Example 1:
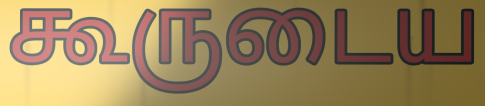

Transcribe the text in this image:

கூருடைய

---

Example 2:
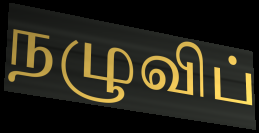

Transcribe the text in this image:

நழுவிப்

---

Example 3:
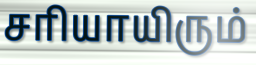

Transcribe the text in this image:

சரியாயிரும்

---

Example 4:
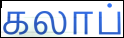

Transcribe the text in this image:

கலாப்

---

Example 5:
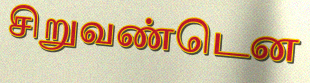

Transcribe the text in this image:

சிறுவண்டென